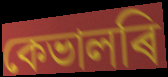
কেভালৰি